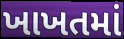
ખાખતમાં